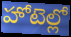
హోటెల్లో